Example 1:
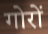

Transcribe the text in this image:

गोरों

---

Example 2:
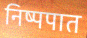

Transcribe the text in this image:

निष्पपात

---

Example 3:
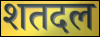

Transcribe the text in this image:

शतदल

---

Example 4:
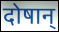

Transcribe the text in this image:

दोषान्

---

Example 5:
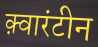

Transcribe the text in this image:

क़्वारंटीन